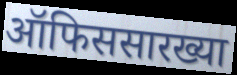
ऑफिससारख्या